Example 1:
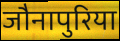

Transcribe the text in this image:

जौनापुरिया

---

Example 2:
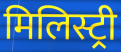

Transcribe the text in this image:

मिलिस्ट्री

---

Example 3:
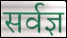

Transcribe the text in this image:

सर्वज्ञ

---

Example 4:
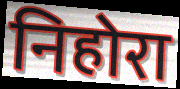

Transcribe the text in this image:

निहोरा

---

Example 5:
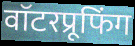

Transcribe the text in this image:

वॉटरप्रूफिंग